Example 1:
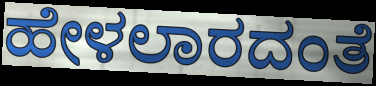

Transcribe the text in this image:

ಹೇಳಲಾರದಂತೆ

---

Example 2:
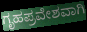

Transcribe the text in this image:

ಗೃಹಪ್ರವೇಶವಾಗಿ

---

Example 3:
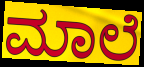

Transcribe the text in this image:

ಮಾಲೆ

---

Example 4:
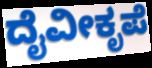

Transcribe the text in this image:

ದೈವೀಕೃಪೆ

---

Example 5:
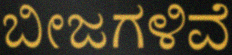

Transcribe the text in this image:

ಬೀಜಗಳಿವೆ